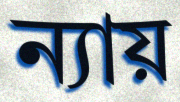
ন্যায়